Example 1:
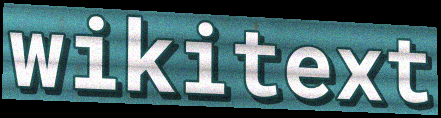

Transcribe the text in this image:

wikitext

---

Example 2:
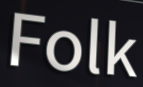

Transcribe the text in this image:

Folk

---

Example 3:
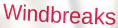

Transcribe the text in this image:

Windbreaks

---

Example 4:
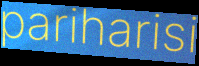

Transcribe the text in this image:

pariharisi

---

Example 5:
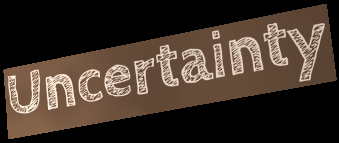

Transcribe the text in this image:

Uncertainty